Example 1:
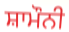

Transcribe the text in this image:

ਸ਼ਾਮੌਨੀ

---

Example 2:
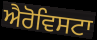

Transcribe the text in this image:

ਐਰੋਵਿਸਟਾ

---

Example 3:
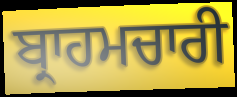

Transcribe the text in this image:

ਬ੍ਰਾਹਮਚਾਰੀ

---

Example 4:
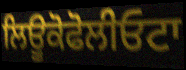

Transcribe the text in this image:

ਲਿਊਕੋਫੋਲੀਓਟਾ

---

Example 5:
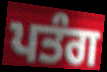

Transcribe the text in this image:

ਪਤੰਗ